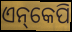
ଏନ୍‌କେପି